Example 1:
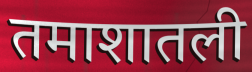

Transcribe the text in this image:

तमाशातली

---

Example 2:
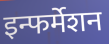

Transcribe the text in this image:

इन्फर्मेशन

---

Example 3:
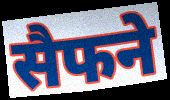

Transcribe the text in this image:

सैफने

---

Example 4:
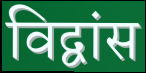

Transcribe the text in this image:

विद्वांस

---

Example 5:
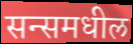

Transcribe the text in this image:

सन्समधील